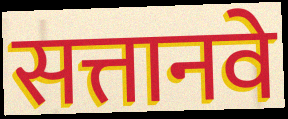
सत्तानवे